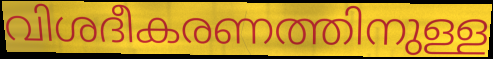
വിശദീകരണത്തിനുള്ള